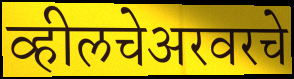
व्हीलचेअरवरचे